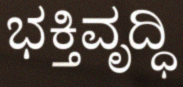
ಭಕ್ತಿವೃದ್ಧಿ